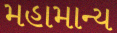
મહામાન્ય